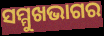
ସମ୍ମୁଖଭାଗର